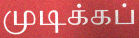
முடிக்கப்